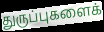
துருப்புகளைக்